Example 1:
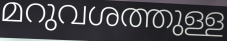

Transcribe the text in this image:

മറുവശത്തുള്ള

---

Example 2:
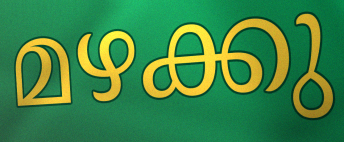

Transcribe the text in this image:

മഴക്കു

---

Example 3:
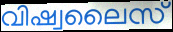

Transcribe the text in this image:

വിഷ്വലൈസ്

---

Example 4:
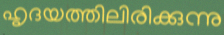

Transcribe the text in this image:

ഹൃദയത്തിലിരിക്കുന്നു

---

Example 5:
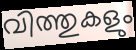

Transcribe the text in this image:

വിത്തുകളും